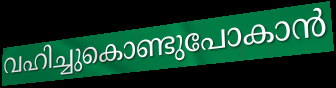
വഹിച്ചുകൊണ്ടുപോകാൻ